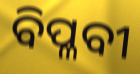
ବିପ୍ଳବୀ